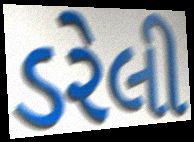
ડરેલી